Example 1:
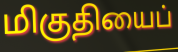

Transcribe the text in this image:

மிகுதியைப்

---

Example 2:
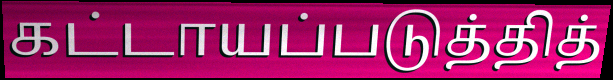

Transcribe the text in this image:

கட்டாயப்படுத்தித்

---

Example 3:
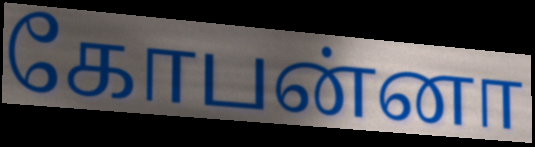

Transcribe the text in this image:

கோபன்னா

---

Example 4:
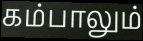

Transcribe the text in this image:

கம்பாலும்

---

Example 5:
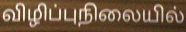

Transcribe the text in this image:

விழிப்புநிலையில்